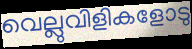
വെല്ലുവിളികളോടു